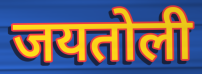
जयतोली